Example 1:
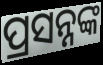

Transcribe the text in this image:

ପ୍ରସନ୍ନଙ୍କ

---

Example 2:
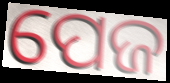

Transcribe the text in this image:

ପେଜ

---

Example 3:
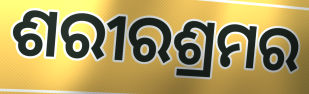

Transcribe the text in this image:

ଶରୀରଶ୍ରମର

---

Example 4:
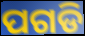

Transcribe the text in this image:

ପଗଡି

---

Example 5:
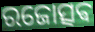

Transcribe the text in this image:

ରଜୋତ୍ସଵ